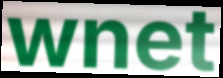
wnet